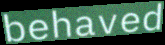
behaved